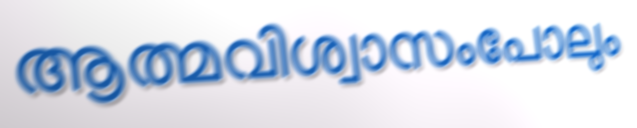
ആത്മവിശ്വാസംപോലും